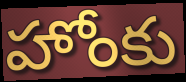
హోంకు